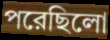
পরেছিলো